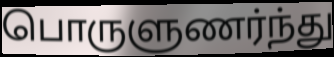
பொருளுணர்ந்து